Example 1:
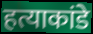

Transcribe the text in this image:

हत्याकांडे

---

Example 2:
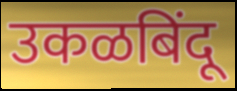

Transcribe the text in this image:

उकळबिंदू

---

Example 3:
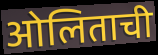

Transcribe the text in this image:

ओलिताची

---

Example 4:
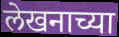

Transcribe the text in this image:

लेखनाच्या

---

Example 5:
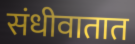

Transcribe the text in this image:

संधीवातात